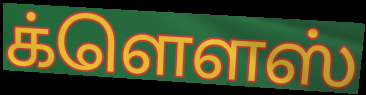
க்ளௌஸ்